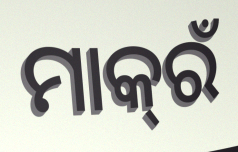
ମାକ୍‌ରଁ